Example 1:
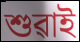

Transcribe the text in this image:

শুৱাই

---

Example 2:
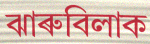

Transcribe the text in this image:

ঝাৰুবিলাক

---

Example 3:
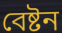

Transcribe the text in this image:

বেষ্টন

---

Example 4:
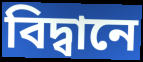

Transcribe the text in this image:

বিদ্বানে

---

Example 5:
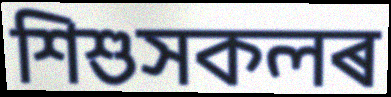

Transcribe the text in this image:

শিশুসকলৰ